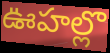
ఊహల్లొ